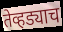
तेव्हड्याच